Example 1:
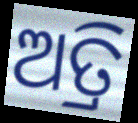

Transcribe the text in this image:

ଅତ୍ରି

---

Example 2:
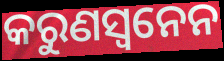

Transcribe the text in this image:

କରୁଣସ୍ଵନେନ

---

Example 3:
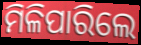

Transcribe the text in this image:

ମିଳିପାରିଲେ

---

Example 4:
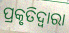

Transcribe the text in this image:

ପ୍ରକୃତିଦ୍ୱାରା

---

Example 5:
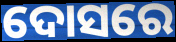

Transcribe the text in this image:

ଦୋସରେ